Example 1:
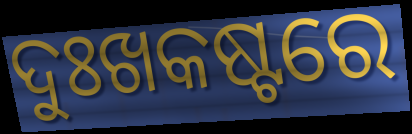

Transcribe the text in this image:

ଦୁଃଖକଷ୍ଟରେ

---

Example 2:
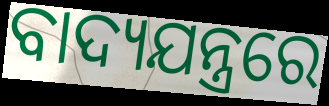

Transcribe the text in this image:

ବାଦ୍ୟଯନ୍ତ୍ରରେ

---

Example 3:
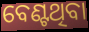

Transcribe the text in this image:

ବେଣ୍ଟଥିବା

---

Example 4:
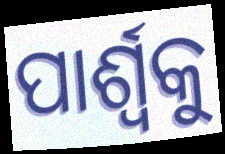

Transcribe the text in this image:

ପାର୍ଶ୍ଵକୁ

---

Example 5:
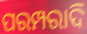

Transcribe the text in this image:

ପରମ୍ପରାଦି